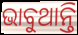
ଭାବୁଥାନ୍ତି